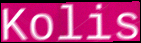
Kolis